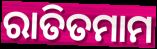
ରାତିତମାମ